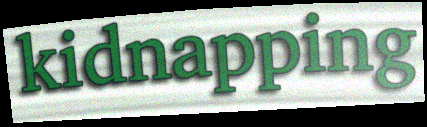
kidnapping